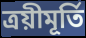
ত্ৰয়ীমূৰ্তি